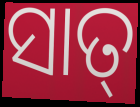
ସାତ୍